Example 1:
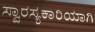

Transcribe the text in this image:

ಸ್ವಾರಸ್ಯಕಾರಿಯಾಗಿ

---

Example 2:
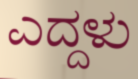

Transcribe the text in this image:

ಎದ್ದಳು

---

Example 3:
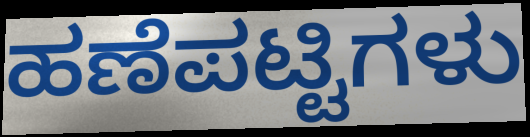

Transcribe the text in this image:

ಹಣೆಪಟ್ಟಿಗಳು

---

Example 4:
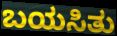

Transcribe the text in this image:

ಬಯಸಿತು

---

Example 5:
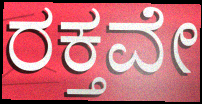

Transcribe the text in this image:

ರಕ್ತವೇ